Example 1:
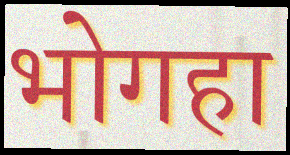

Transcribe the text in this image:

भोगहा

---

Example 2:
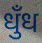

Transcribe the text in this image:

धुँध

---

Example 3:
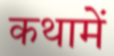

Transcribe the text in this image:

कथामें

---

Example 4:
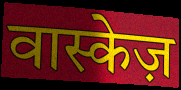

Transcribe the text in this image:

वास्केज़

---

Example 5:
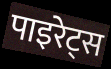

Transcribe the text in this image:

पाइरेट्स